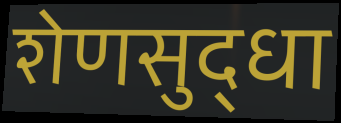
शेणसुद्धा